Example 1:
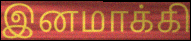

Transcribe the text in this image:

இனமாக்கி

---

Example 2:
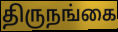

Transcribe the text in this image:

திருநங்கை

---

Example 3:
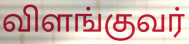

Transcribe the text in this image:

விளங்குவர்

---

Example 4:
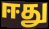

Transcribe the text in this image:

ஈது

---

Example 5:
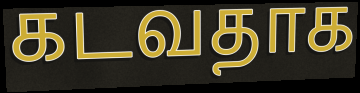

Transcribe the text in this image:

கடவதாக